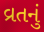
વ્રતનું